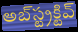
అబ్‌స్ట్రక్టివ్